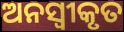
ଅନସ୍ବୀକୃତ